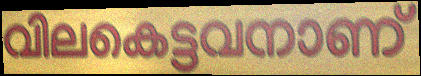
വിലകെട്ടവനാണ്